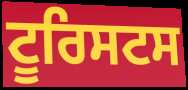
ਟੂਰਿਸਟਸ